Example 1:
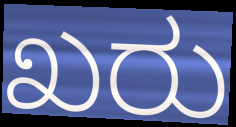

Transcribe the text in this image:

ಖರು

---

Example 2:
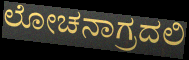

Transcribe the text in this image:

ಲೋಚನಾಗ್ರದಲಿ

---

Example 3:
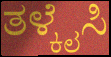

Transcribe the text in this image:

ತಳ್ಕೈಸಿ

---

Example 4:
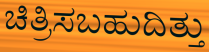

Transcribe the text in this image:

ಚಿತ್ರಿಸಬಹುದಿತ್ತು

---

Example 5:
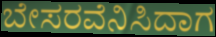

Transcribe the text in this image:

ಬೇಸರವೆನಿಸಿದಾಗ